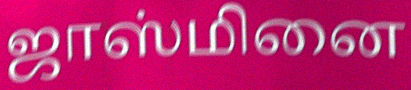
ஜாஸ்மினை